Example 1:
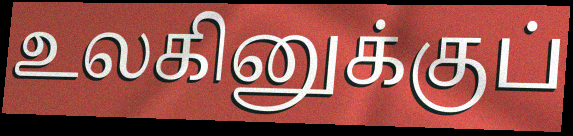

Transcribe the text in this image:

உலகினுக்குப்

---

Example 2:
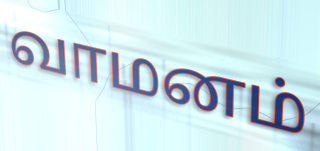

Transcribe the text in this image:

வாமனம்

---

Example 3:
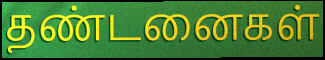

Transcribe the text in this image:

தண்டனைகள்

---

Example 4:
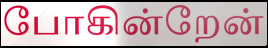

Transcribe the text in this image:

போகின்றேன்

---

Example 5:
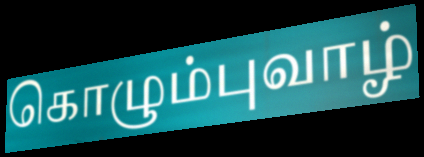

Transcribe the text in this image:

கொழும்புவாழ்